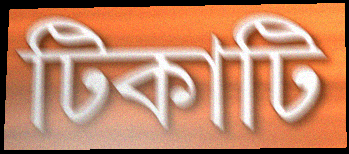
টিকাটি